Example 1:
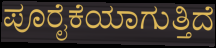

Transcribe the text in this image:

ಪೂರೈಕೆಯಾಗುತ್ತಿದೆ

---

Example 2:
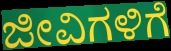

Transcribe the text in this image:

ಜೀವಿಗಳಿಗೆ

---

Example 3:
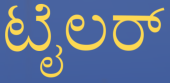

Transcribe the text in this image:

ಟೈಲರ್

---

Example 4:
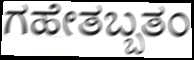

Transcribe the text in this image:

ಗಹೇತಬ್ಬತಂ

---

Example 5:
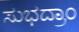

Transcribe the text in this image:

ಸುಭದ್ರಾಂ